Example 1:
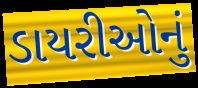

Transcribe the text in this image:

ડાયરીઓનું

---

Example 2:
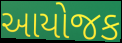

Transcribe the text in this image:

આયોજક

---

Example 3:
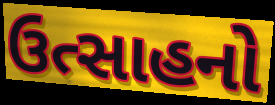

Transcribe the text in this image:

ઉત્સાહનો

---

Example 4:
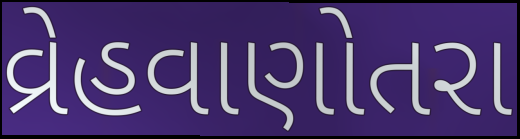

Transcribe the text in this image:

વ્રેહવાણોતરા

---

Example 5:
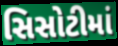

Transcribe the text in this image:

સિસોટીમાં